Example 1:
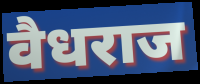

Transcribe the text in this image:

वैधराज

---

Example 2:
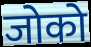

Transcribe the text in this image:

जोको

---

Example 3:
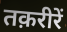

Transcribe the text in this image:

तक़रीरें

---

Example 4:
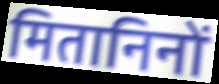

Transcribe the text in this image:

मितानिनों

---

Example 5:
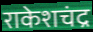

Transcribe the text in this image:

राकेशचंद्र